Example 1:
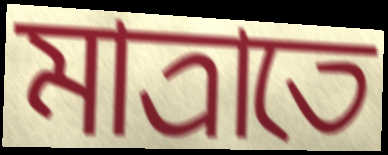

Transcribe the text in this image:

মাত্ৰাতে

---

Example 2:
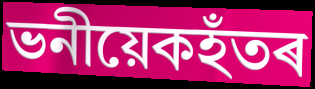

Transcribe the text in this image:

ভনীয়েকহঁতৰ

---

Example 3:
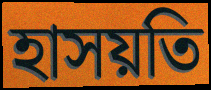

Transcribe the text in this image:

হাসয়তি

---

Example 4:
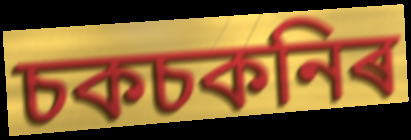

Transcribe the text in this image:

চকচকনিৰ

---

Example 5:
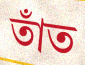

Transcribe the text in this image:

তাঁত